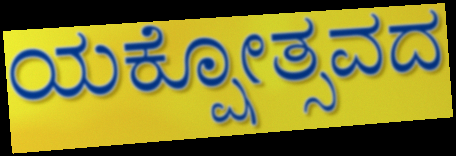
ಯಕ್ಷೋತ್ಸವದ